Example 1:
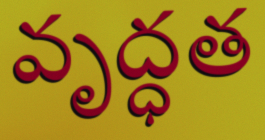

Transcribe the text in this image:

వృద్ధత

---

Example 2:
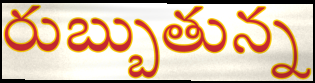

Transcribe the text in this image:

రుబ్బుతున్న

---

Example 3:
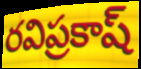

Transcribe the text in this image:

రవిప్రకాష్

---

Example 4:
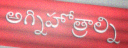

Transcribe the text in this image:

అగ్నిహోత్రాల్ని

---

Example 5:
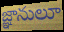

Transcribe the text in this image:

జ్ఞానులూ